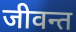
जीवन्त